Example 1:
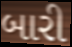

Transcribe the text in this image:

બારી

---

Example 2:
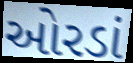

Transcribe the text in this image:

ઓરડાં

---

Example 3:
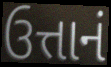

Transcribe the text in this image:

ઉત્તાનં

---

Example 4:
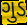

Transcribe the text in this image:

ગુડ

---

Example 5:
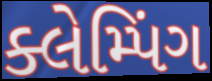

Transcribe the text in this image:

ક્લેમ્પિંગ